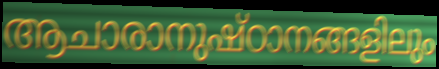
ആചാരാനുഷ്ഠാനങ്ങളിലും